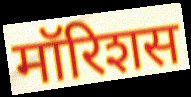
मॉरिशस